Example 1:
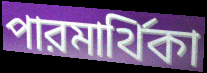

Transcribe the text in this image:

পারমার্থিকা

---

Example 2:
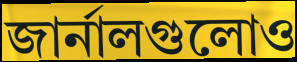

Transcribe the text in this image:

জার্নালগুলোও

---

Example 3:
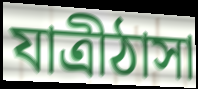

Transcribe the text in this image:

যাত্রীঠাসা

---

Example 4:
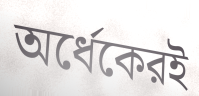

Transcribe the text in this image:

অর্ধেকেরই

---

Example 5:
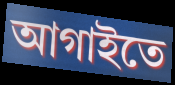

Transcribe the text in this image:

আগাইতে